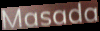
Masada